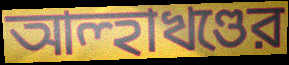
আল্হাখণ্ডের